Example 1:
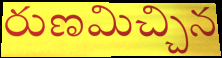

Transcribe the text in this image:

రుణమిచ్చిన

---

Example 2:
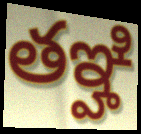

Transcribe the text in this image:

తఞ్హి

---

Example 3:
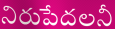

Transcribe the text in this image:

నిరుపేదలనీ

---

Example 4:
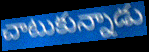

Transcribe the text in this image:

చాటుకున్నాడు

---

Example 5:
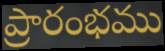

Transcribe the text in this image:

ప్రారంభము